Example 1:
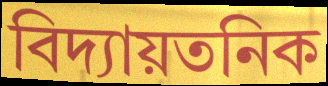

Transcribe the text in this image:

বিদ্যায়তনিক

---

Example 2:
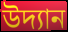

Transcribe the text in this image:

উদ্যান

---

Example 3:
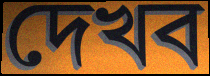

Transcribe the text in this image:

দেখব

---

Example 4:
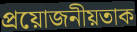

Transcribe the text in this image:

প্ৰয়োজনীয়তাক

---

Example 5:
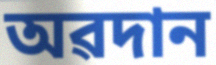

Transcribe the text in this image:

অৱদান